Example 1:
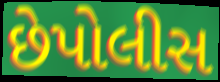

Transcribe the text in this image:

છેપોલીસ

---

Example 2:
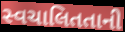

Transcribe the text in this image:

સ્વચાલિતતાની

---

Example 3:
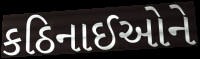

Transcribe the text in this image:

કઠિનાઈઓને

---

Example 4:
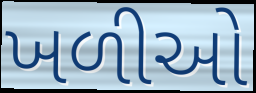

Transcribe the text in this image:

ખળીઓ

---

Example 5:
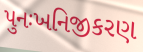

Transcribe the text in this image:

પુનઃખનિજીકરણ